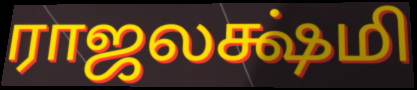
ராஜலக்ஷ்மி